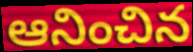
ఆనించిన